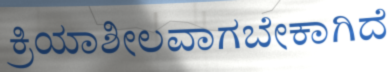
ಕ್ರಿಯಾಶೀಲವಾಗಬೇಕಾಗಿದೆ